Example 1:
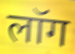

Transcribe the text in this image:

लॉग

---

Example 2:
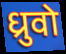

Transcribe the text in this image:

ध्रुवो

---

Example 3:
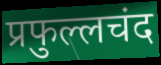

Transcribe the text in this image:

प्रफुल्लचंद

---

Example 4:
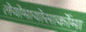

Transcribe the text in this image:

लेयोमायोसार्कोमा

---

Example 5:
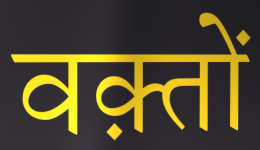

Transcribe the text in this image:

वक़्तों